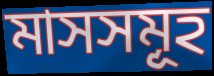
মাসসমূহ